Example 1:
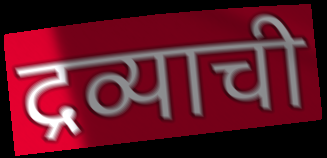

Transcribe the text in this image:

द्रव्याची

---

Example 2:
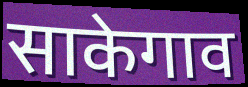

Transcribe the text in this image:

साकेगाव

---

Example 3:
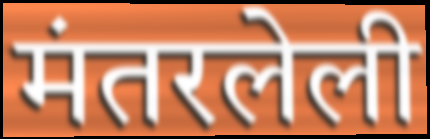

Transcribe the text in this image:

मंतरलेली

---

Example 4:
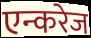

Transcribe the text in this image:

एन्करेज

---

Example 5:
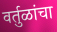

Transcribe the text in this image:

वर्तुळांचा